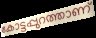
കോട്ടപ്പുറത്താണ്